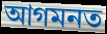
আগমনত